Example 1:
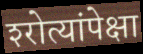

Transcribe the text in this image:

श्रोत्यांपेक्षा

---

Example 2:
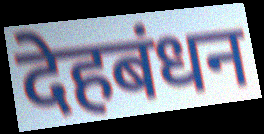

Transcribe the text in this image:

देहबंधन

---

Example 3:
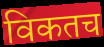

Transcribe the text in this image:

विकतच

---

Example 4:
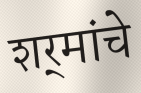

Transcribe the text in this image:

शर्मांचे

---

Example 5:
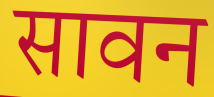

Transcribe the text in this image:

सावन